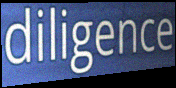
diligence